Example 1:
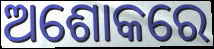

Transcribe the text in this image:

ଅଶୋକରେ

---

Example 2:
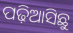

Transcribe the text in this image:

ପଢ଼ିଆସିଛୁ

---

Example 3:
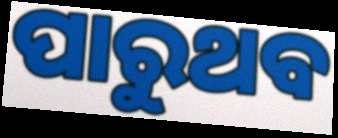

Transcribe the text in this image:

ପାରୁଥବ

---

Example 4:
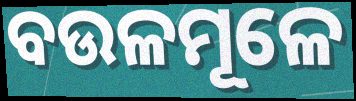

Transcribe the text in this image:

ବଉଳମୂଳେ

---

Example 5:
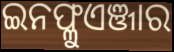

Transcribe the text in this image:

ଇନଫ୍ଳୁଏଞ୍ଜାର